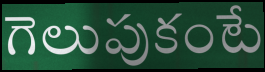
గెలుపుకంటే